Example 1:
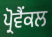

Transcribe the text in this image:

ਪ੍ਰੋਵੈਂਕਲ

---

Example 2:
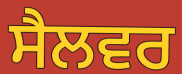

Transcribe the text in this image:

ਸੈਲਵਰ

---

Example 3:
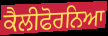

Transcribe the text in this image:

ਕੈਲੀਫੋਰਨਿਆ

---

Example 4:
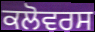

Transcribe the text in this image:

ਕਲੋਵਰਸ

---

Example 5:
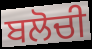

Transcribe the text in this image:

ਬਲੋਚੀ